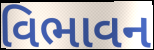
વિભાવન